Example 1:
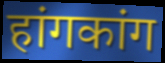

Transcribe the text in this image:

हांगकांग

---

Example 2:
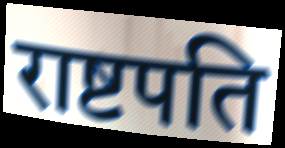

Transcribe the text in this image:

राष्टपति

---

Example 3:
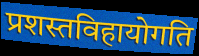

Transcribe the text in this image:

प्रशस्तविहायोगति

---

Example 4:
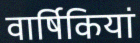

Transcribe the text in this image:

वार्षिकियां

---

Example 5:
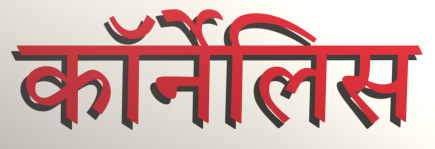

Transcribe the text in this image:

कॉर्नेलिस